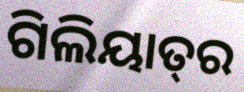
ଗିଲିୟାତ୍‍ର